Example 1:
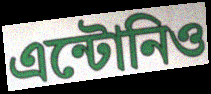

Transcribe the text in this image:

এন্টোনিও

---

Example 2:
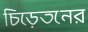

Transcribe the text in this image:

চিড়েতনের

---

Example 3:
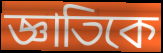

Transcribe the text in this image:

জ্ঞাতিকে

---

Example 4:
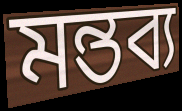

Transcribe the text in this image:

মন্তব্য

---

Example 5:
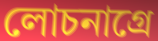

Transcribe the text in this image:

লোচনাগ্রে